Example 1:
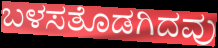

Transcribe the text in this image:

ಬಳಸತೊಡಗಿದವು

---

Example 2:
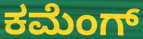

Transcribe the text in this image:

ಕಮೆಂಗ್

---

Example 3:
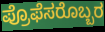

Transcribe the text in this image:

ಪ್ರೊಫೆಸರೊಬ್ಬರ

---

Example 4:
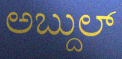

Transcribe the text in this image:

ಅಬ್ದುಲ್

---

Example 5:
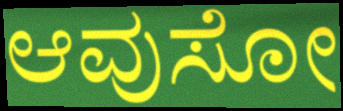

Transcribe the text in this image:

ಆವುಸೋ